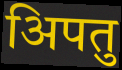
अिपतु